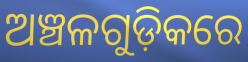
ଅଞ୍ଚଳଗୁଡ଼ିକରେ